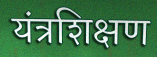
यंत्रशिक्षण